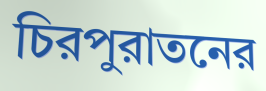
চিরপুরাতনের